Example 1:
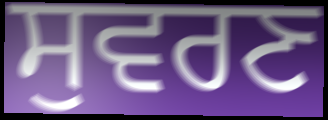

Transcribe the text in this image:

ਸੁਵਰਣ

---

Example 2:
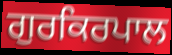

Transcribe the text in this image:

ਗੁਰਕਿਰਪਾਲ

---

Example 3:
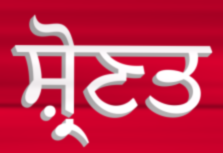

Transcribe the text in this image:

ਸ਼੍ਰੋਣਤ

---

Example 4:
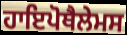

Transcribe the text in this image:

ਹਾਇਪੋਥੈਲੇਮਸ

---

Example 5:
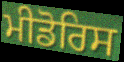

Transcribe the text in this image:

ਮੀਡੋਰਿਸ